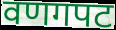
वणगपट